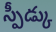
స్పీడ్కు